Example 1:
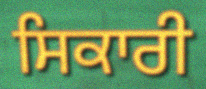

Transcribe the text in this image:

ਸਿਕਾਰੀ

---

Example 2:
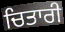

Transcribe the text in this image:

ਚਿਤਾਰੀ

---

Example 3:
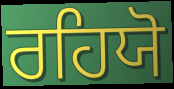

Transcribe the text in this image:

ਰਹਿਯੋ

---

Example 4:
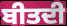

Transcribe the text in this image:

ਬੀਤਦੀ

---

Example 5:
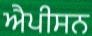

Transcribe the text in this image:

ਐਪੀਸਨ